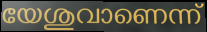
യേശുവാണെന്ന്